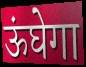
ऊंघेगा